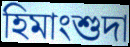
হিমাংশুদা